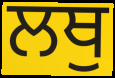
ਲਥੁ